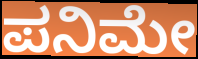
ಪನಿಮೇ